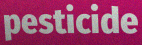
pesticide